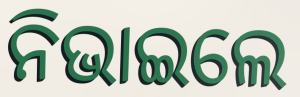
ନିଭାଇଲେ